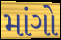
માંગો